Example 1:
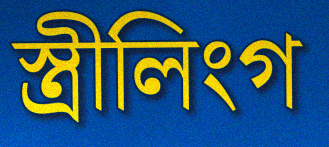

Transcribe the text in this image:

স্ত্ৰীলিংগ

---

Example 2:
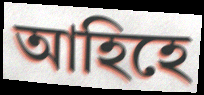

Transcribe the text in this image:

আহিহে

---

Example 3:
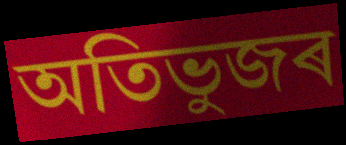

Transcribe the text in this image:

অতিভুজৰ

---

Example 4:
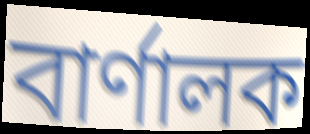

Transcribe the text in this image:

বাৰ্ণালক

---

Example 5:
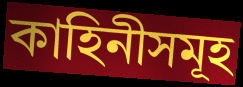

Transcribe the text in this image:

কাহিনীসমূহ